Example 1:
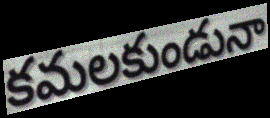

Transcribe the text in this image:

కమలకుండునా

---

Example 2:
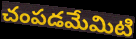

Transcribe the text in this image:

చంపడమేమిటి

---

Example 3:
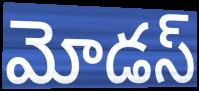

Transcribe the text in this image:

మోడస్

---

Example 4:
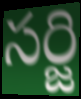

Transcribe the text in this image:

సర్జి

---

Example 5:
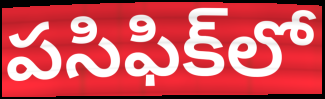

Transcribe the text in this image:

పసిఫిక్‌లో